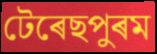
টেৰেছপুৰম